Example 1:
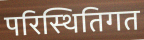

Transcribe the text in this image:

परिस्थितिगत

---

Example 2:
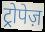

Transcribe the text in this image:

ट्रोपेज़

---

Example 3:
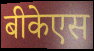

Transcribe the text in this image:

बीकेएस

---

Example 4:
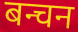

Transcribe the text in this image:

बन्चन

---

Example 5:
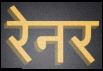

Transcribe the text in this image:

रेनर